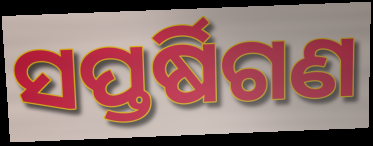
ସପ୍ତର୍ଷିଗଣ